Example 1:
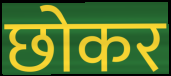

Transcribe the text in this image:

छोकर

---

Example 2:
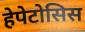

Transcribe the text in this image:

हेपेटोसिस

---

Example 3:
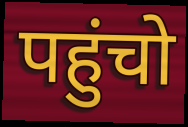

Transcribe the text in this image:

पहुंचो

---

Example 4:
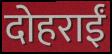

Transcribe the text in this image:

दोहराईं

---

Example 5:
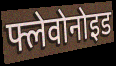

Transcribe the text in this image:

फ्लेवोनोइड